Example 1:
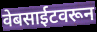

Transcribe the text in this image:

वेबसाईटवरून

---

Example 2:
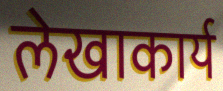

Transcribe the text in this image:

लेखाकार्य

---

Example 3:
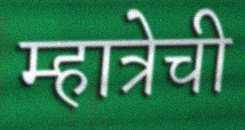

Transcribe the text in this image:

म्हात्रेची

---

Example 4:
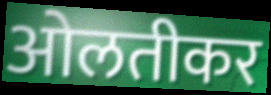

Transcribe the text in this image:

ओलतीकर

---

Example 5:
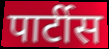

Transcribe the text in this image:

पार्टीस